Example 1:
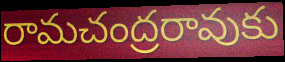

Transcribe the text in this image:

రామచంద్రరావుకు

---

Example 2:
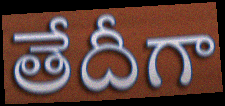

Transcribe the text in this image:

తేదీగా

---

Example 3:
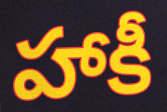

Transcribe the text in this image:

హాకీ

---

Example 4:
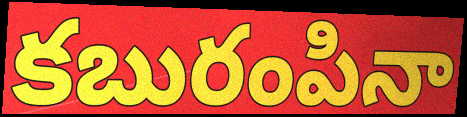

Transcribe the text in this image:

కబురంపినా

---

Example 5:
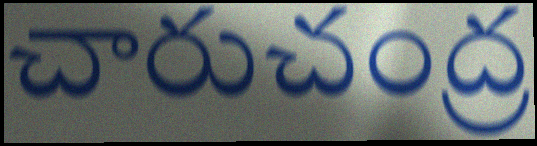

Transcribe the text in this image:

చారుచంద్ర